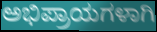
ಅಭಿಪ್ರಾಯಗಳಾಗಿ